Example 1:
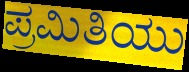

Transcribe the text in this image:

ಪ್ರಮಿತಿಯು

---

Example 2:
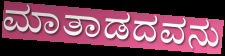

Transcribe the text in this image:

ಮಾತಾಡದವನು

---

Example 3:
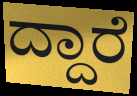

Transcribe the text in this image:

ದ್ದಾರೆ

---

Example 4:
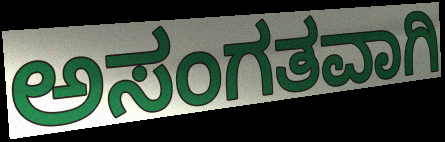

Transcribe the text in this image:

ಅಸಂಗತವಾಗಿ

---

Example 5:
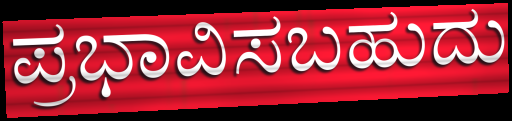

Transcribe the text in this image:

ಪ್ರಭಾವಿಸಬಹುದು